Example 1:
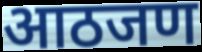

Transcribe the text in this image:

आठजण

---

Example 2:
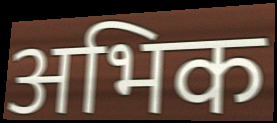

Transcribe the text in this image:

अभिक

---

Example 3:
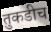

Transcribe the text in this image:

तुकडीच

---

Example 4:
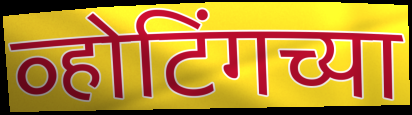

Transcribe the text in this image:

व्होटिंगच्या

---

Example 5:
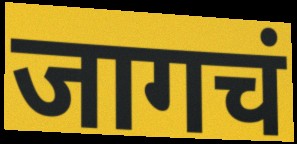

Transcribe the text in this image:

जागचं